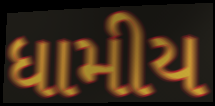
ધામીય